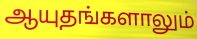
ஆயுதங்களாலும்